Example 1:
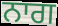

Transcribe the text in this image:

ਨਾਗ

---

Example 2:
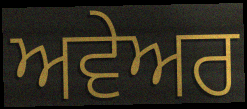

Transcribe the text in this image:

ਅਵੇਅਰ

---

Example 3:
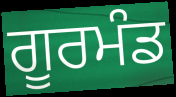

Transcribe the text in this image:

ਗੂਰਮੰਡ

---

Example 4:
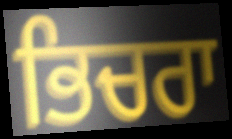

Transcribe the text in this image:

ਭਿਚਰਾ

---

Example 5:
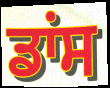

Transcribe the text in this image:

ਡਾਂਸ